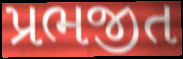
પ્રભજીત